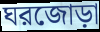
ঘরজোড়া